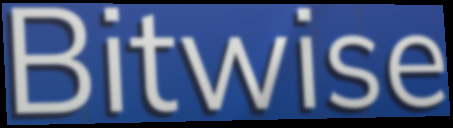
Bitwise